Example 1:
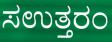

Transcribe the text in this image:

ಸಉತ್ತರಂ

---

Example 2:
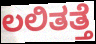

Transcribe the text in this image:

ಲಲಿತತ್ತೆ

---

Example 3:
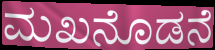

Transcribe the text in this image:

ಮಖನೊಡನೆ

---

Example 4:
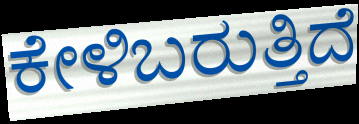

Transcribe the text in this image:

ಕೇಳಿಬರುತ್ತಿದೆ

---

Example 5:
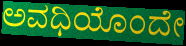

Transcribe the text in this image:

ಅವಧಿಯೊಂದೇ